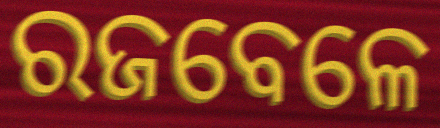
ରଜବେଳେ